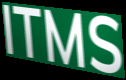
ITMS